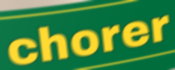
chorer